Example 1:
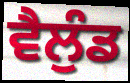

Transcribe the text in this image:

ਵੈਲੁੰਡ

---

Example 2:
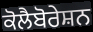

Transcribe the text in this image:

ਕੋਲੈਬੋਰੇਸ਼ਨ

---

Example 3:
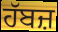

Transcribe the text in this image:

ਹੱਬਜ਼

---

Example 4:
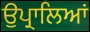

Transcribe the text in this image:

ਉਪ੍ਰਾਲਿਆਂ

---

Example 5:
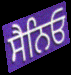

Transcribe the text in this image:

ਸੈਨਿਓ